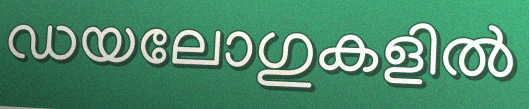
ഡയലോഗുകളിൽ